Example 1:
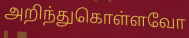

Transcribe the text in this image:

அறிந்துகொள்ளவோ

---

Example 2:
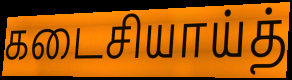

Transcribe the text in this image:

கடைசியாய்த்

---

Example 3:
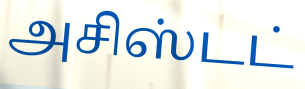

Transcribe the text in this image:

அசிஸ்டட்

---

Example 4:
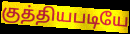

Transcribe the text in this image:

குத்தியபடியே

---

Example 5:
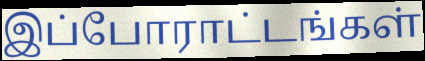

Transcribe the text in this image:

இப்போராட்டங்கள்